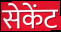
सेकेंट